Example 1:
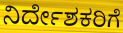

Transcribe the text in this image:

ನಿರ್ದೇಶಕರಿಗೆ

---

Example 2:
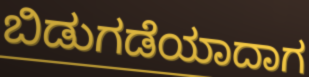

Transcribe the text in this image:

ಬಿಡುಗಡೆಯಾದಾಗ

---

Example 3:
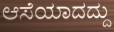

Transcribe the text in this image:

ಆಸೆಯಾದದ್ದು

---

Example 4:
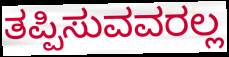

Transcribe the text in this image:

ತಪ್ಪಿಸುವವರಲ್ಲ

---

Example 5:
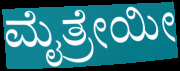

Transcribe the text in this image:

ಮೈತ್ರೇಯೀ